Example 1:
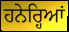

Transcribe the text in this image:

ਹਨੇਰ੍ਹਿਆਂ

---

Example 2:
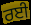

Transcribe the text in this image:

ਰਈ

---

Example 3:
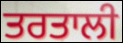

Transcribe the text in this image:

ਤਰਤਾਲੀ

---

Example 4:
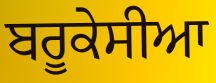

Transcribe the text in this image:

ਬਰੂਕੇਸੀਆ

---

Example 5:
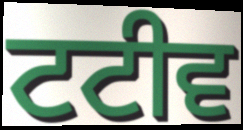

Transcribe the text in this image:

ਟਟੀਵ